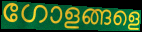
ഗോളങ്ങളെ